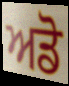
ਅਡੋ